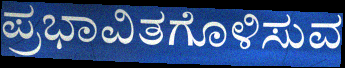
ಪ್ರಭಾವಿತಗೊಳಿಸುವ